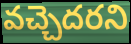
వచ్చెదరని